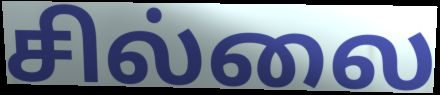
சில்லை